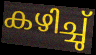
കഴിച്ചു്